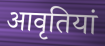
आवृतियां